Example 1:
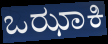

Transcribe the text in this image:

ಒಝಾಕಿ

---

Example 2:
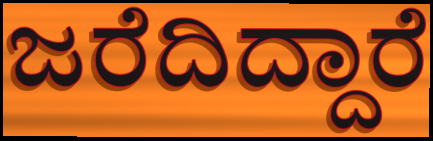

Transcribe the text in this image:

ಜರೆದಿದ್ದಾರೆ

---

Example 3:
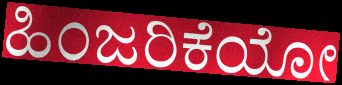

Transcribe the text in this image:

ಹಿಂಜರಿಕೆಯೋ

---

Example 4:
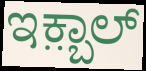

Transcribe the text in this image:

ಇಕ಼್ಬಾಲ್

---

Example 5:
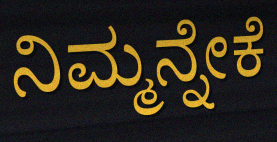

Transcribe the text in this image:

ನಿಮ್ಮನ್ನೇಕೆ